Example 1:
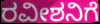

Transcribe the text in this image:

ರವೀಶನಿಗೆ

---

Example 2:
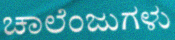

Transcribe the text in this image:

ಚಾಲೆಂಜುಗಳು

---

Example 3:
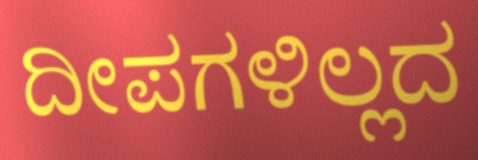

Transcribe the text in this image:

ದೀಪಗಳಿಲ್ಲದ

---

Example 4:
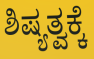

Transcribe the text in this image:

ಶಿಷ್ಯತ್ವಕ್ಕೆ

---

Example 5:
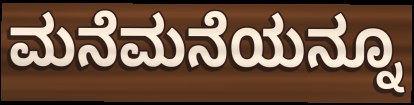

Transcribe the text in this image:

ಮನೆಮನೆಯನ್ನೂ